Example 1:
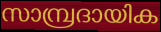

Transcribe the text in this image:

സാമ്പ്രദായിക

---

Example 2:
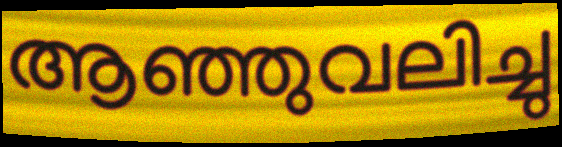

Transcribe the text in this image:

ആഞ്ഞുവലിച്ചു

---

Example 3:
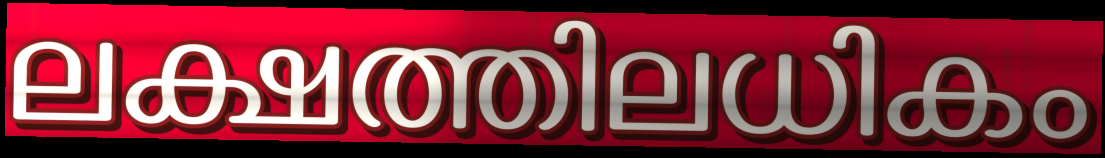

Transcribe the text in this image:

ലക്ഷത്തിലധികം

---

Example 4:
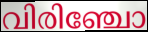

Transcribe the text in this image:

വിരിഞ്ചോ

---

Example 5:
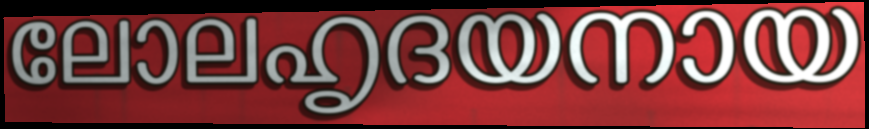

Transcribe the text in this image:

ലോലഹൃദയനായ